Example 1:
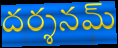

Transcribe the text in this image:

దర్శనమ్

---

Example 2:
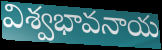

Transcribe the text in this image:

విశ్వభావనాయ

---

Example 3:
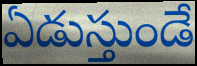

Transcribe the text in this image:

ఏడుస్తుండే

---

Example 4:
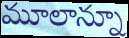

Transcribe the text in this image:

మూలాన్నూ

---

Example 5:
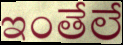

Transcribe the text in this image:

ఇంతేలే